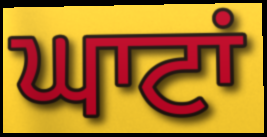
ਘਾਟਾਂ